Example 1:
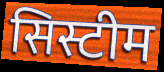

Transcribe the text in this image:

सिस्टीम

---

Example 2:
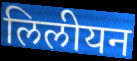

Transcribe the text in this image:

लिलीयन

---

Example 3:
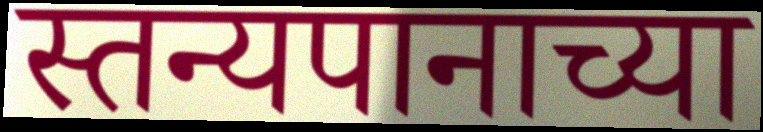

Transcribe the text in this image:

स्तन्यपानाच्या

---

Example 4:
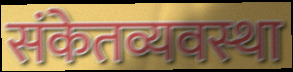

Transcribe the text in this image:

संकेतव्यवस्था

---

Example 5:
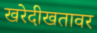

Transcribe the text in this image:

खरेदीखतावर